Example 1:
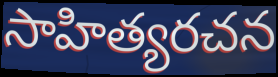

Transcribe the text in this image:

సాహిత్యరచన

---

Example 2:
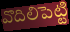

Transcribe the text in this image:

వొదిలిపెట్టి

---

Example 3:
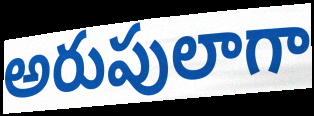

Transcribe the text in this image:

అరుపులాగా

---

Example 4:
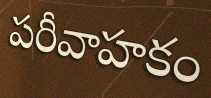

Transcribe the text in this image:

పరీవాహకం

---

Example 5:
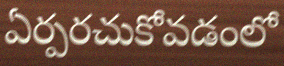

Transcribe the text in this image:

ఏర్పరచుకోవడంలో